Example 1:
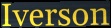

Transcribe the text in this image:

Iverson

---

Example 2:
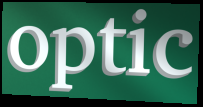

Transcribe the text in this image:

optic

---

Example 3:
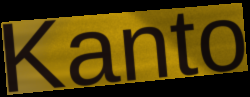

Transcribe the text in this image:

Kanto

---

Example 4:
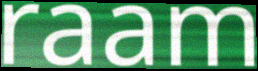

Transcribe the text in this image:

raam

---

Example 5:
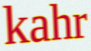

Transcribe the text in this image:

kahr